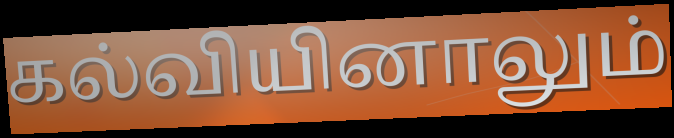
கல்வியினாலும்